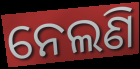
ନେଲଣି